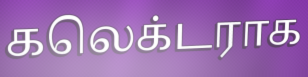
கலெக்டராக